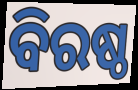
ବିରଷ୍ଠ